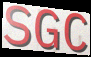
SGC